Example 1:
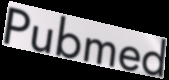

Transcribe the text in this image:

Pubmed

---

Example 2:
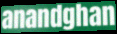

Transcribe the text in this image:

anandghan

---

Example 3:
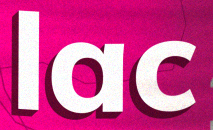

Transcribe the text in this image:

lac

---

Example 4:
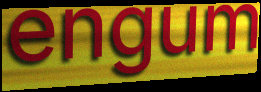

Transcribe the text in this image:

engum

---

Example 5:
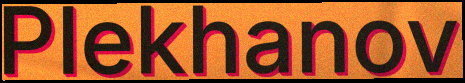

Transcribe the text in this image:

Plekhanov